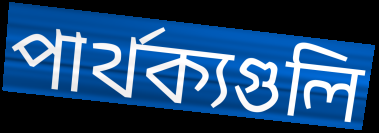
পার্থক্যগুলি